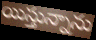
యిస్తున్నాను